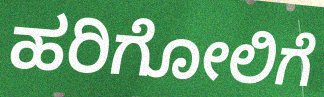
ಹರಿಗೋಲಿಗೆ